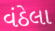
વંઠેલા